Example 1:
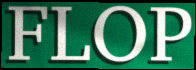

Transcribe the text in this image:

FLOP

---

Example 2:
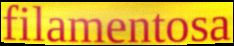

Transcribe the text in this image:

filamentosa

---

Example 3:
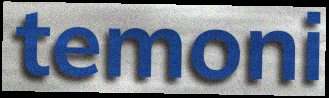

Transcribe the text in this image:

temoni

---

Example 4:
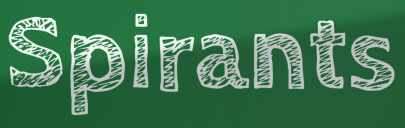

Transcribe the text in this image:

Spirants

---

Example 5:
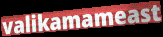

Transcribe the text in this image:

valikamameast